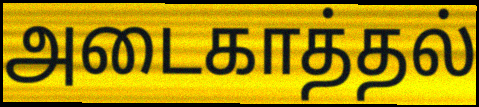
அடைகாத்தல்